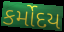
કર્મોદય